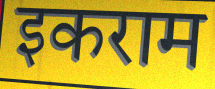
इकराम